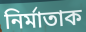
নিৰ্মাতাক